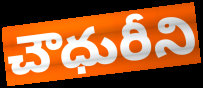
చౌధురీని